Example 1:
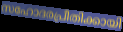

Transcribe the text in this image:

സഹോദരപ്രീതിക്കായി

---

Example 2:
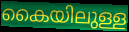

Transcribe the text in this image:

കൈയിലുള്ള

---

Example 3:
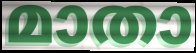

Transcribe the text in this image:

മാതാ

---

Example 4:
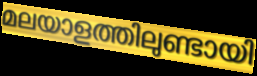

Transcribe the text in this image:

മലയാളത്തിലുണ്ടായി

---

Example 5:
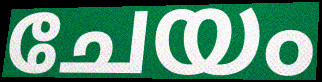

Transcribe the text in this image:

ചേയം